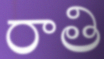
రాతి